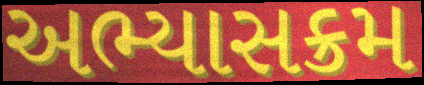
અભ્યાસક્રમ